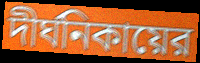
দীর্ঘনিকায়ের